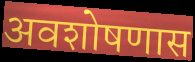
अवशोषणास